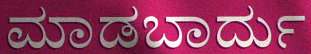
ಮಾಡಬಾರ್ದು